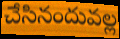
చేసినందువల్ల